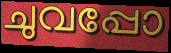
ചുവപ്പോ